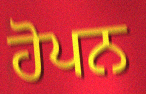
ਹੋਪਨ